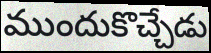
ముందుకొచ్చేడు